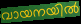
വായനയിൽ